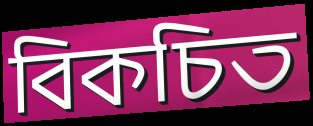
বিকচিত